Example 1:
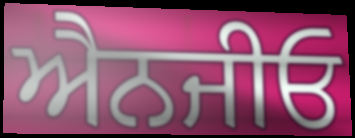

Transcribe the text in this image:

ਐਨਜੀਓ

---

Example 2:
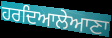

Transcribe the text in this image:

ਹਰਦਿਆਲੇਆਣਾ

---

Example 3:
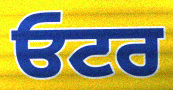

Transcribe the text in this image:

ਓਟਰ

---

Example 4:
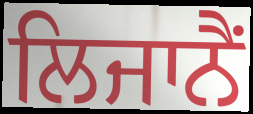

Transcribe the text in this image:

ਲਿਜਾਨੈਂ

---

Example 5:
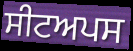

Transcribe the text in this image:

ਸੀਟਅਪਸ